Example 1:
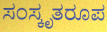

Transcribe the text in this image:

ಸಂಸ್ಕೃತರೂಪ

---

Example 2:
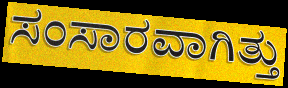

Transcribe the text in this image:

ಸಂಸಾರವಾಗಿತ್ತು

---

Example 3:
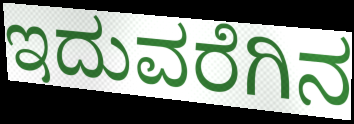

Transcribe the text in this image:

ಇದುವರೆಗಿನ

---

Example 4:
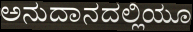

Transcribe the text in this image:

ಅನುದಾನದಲ್ಲಿಯೂ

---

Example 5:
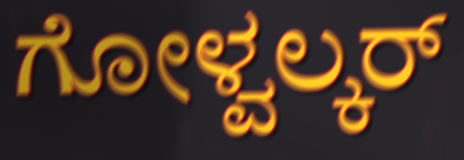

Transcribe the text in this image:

ಗೋಳ್ವಲ್ಕರ್